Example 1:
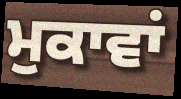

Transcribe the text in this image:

ਮੁਕਾਵਾਂ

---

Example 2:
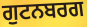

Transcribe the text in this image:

ਗੁਟਨਬਰਗ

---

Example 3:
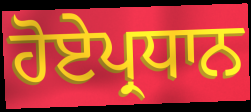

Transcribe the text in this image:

ਹੋਏਪ੍ਰਧਾਨ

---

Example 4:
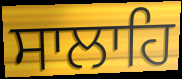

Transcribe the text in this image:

ਸਾਲਾਹਿ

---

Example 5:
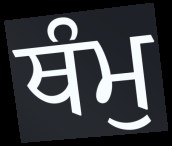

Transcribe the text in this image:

ਥੰਮੁ